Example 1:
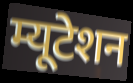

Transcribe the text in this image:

म्यूटेशन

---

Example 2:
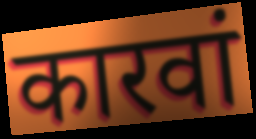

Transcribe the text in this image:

कारवां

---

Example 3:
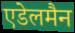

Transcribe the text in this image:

एडेलमैन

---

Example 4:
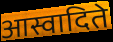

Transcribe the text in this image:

आस्वादिते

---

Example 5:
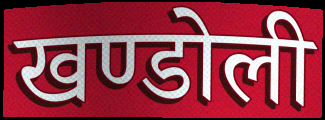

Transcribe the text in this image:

खण्डोली